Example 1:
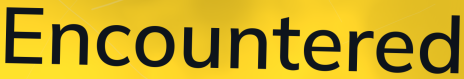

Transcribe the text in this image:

Encountered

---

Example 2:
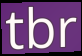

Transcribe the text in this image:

tbr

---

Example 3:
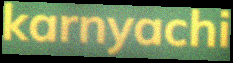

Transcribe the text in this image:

karnyachi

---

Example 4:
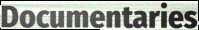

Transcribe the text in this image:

Documentaries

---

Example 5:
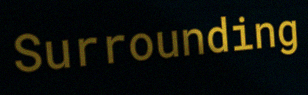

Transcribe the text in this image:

Surrounding